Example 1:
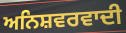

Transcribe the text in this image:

ਅਨਿਸ਼ਵਰਵਾਦੀ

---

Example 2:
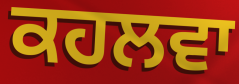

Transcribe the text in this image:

ਕਹਲਵਾ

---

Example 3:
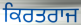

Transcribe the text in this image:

ਕਿਰਤਰਾਜ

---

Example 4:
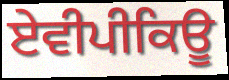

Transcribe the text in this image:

ਏਵੀਪੀਕਿਊ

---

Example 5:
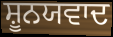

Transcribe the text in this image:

ਸ਼ੂਨਯਵਾਦ